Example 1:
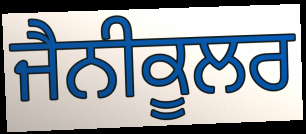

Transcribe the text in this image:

ਜੈਨੀਕੂਲਰ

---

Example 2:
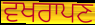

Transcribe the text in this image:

ਵਖਰਾਪਣ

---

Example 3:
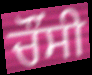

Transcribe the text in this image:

ਚੌਂਸੀ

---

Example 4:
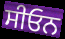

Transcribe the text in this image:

ਸੀਓਨ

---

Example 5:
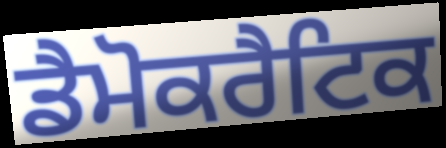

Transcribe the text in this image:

ਡੈਮੋਕਰੈਟਿਕ